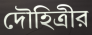
দৌহিত্রীর